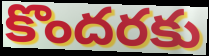
కొందరకు